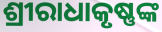
ଶ୍ରୀରାଧାକୃଷ୍ଣଙ୍କ